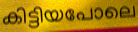
കിട്ടിയപോലെ